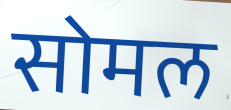
सोमल